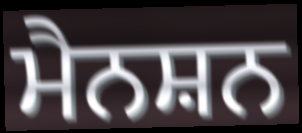
ਮੈਨਸ਼ਨ